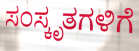
ಸಂಸ್ಕೃತಗಳಿಗೆ